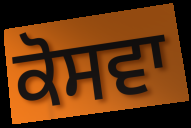
ਕੋਸਵਾ